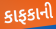
કાફકાની